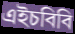
এইচবিবি